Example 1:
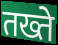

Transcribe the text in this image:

तख्ते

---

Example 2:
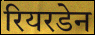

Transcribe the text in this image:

रियरडेन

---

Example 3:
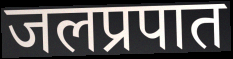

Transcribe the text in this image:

जलप्रपात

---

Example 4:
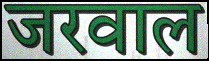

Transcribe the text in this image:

जरवाल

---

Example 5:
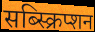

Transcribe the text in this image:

सब्स्क्रिप्शन